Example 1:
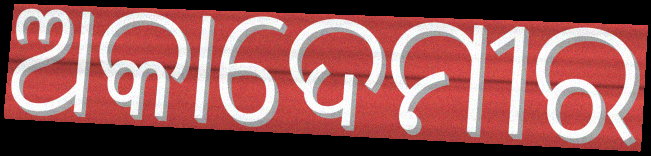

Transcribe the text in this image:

ଅକାଦେମୀର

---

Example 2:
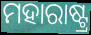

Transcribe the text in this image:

ମହାରାଷ୍ଟ୍ର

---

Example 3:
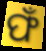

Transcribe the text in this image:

ଫଁ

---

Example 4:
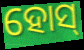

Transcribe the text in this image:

ହୋସ୍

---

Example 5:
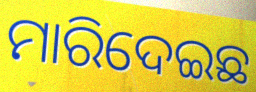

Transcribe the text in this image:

ମାରିଦେଇଛ